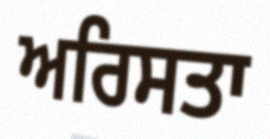
ਅਰਿਸਤਾ